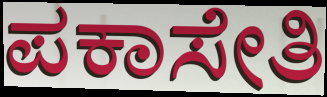
ಪಕಾಸೇತಿ